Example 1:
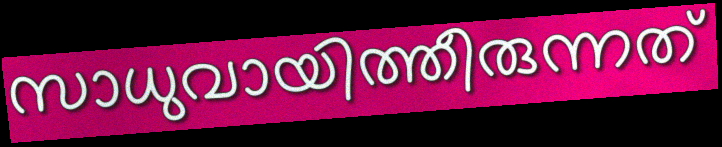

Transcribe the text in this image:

സാധുവായിത്തീരുന്നത്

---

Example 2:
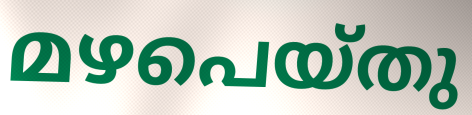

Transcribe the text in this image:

മഴപെയ്തു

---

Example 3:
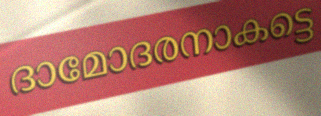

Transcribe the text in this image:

ദാമോദരനാകട്ടെ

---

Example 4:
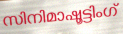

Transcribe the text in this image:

സിനിമാഷൂട്ടിംഗ്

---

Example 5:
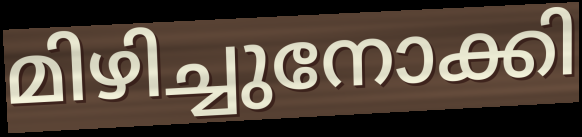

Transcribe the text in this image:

മിഴിച്ചുനോക്കി